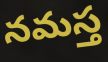
నమస్త